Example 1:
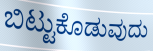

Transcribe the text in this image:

ಬಿಟ್ಟುಕೊಡುವುದು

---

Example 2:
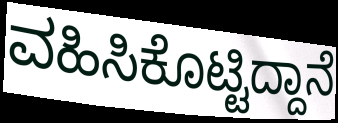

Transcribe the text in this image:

ವಹಿಸಿಕೊಟ್ಟಿದ್ದಾನೆ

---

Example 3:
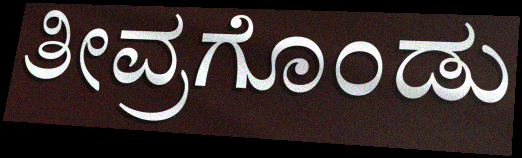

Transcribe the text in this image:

ತೀವ್ರಗೊಂಡು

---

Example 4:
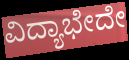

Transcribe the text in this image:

ವಿದ್ಯಾಭೇದೇ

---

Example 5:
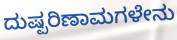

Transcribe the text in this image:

ದುಷ್ಪರಿಣಾಮಗಳೇನು